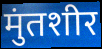
मुंतशीर